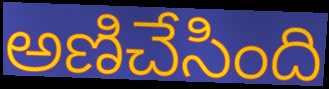
అణిచేసింది